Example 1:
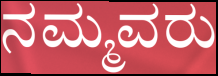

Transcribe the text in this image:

ನಮ್ಮವರು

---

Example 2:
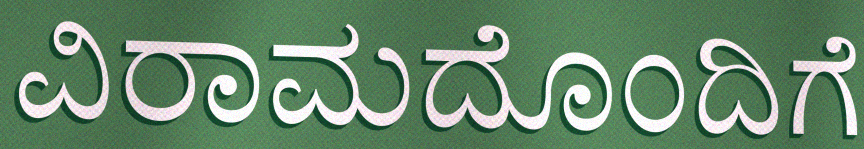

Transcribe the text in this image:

ವಿರಾಮದೊಂದಿಗೆ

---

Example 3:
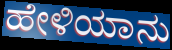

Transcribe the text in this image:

ಹೇಳಿಯಾನು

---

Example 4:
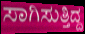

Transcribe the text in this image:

ಸಾಗಿಸುತ್ತಿದ್ದ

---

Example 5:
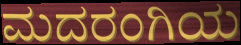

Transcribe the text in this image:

ಮದರಂಗಿಯ